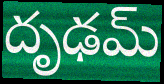
దృఢమ్